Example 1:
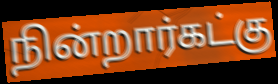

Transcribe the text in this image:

நின்றார்கட்கு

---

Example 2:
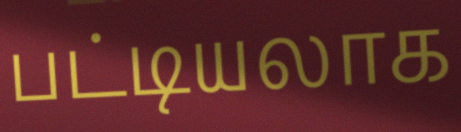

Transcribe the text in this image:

பட்டியலாக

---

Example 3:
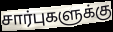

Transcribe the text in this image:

சார்புகளுக்கு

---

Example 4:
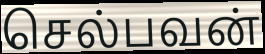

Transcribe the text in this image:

செல்பவன்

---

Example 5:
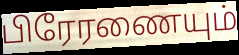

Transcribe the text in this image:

பிரேரணையும்